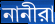
নানীরা